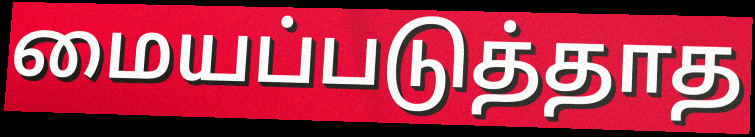
மையப்படுத்தாத